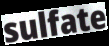
sulfate